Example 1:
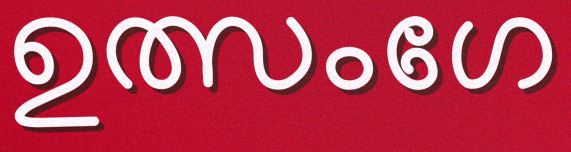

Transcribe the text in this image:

ഉത്സംഗേ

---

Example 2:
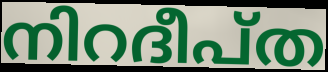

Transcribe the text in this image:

നിറദീപ്ത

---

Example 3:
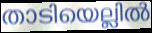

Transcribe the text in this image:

താടിയെല്ലിൽ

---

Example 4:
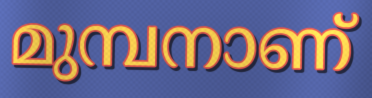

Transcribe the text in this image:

മുമ്പനാണ്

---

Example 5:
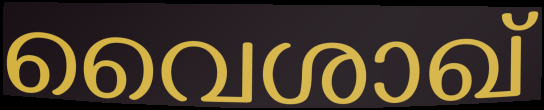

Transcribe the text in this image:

വൈശാഖ്